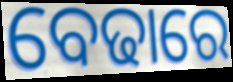
ବେଢାରେ